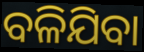
ବଳିଯିବା